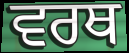
ਵਰਥ